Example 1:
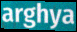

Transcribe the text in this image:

arghya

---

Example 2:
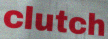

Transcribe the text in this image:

clutch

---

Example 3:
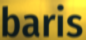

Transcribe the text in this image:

baris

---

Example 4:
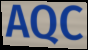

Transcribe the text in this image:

AQC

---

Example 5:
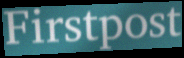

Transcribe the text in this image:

Firstpost